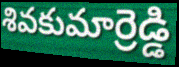
శివకుమార్రెడ్డి